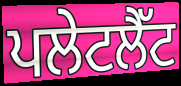
ਪਲੇਟਲੈੱਟ